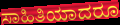
ಸಾಹಿತಿಯಾದರೂ